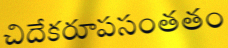
చిదేకరూపసంతతం